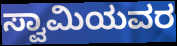
ಸ್ವಾಮಿಯವರ